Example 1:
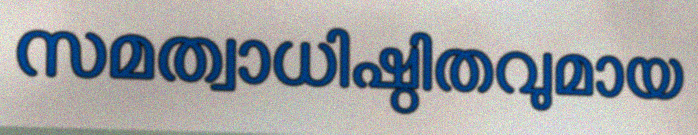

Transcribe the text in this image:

സമത്വാധിഷ്ഠിതവുമായ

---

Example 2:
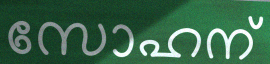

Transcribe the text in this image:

സോഹന്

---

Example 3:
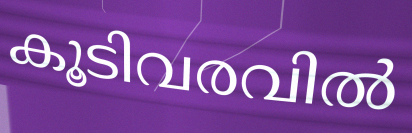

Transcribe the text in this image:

കൂടിവരവിൽ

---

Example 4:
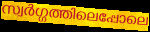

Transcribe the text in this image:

സ്വർഗ്ഗത്തിലെപ്പോലെ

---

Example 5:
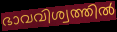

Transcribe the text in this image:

ഭാവവിശ്വത്തിൽ